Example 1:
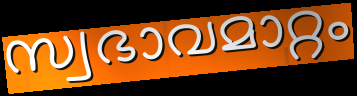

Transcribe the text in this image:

സ്വഭാവമാറ്റം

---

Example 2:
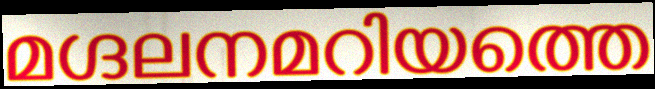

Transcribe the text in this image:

മഗ്ദലനമറിയത്തെ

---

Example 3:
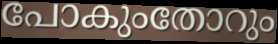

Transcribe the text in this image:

പോകുംതോറും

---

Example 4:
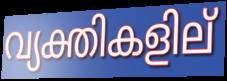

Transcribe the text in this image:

വ്യക്തികളില്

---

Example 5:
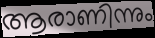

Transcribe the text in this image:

ആരാണിന്നും